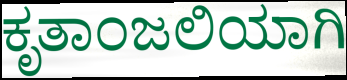
ಕೃತಾಂಜಲಿಯಾಗಿ